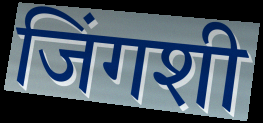
जिंगशी